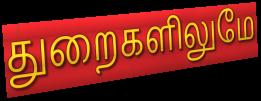
துறைகளிலுமே